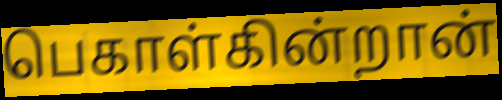
பெகாள்கின்றான்